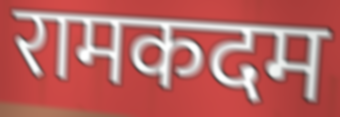
रामकदम